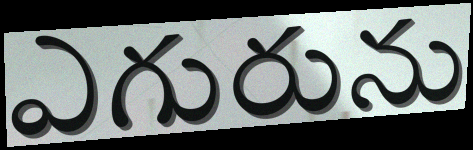
ఎగురును